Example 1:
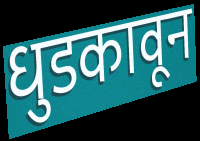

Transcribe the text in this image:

धुडकावून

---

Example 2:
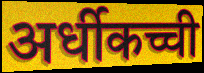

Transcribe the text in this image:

अर्धीकच्ची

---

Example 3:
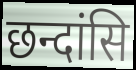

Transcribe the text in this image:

छन्दांसि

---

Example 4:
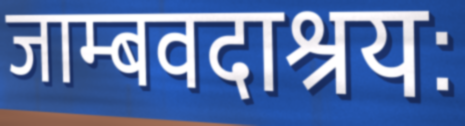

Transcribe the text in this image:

जाम्बवदाश्रयः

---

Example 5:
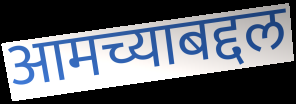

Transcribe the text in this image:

आमच्याबद्दल